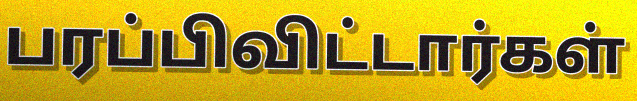
பரப்பிவிட்டார்கள்